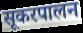
सूकरपालन